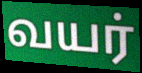
வயர்